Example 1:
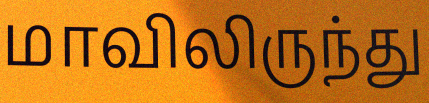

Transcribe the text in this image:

மாவிலிருந்து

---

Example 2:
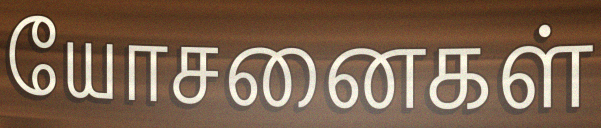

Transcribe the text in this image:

யோசனைகள்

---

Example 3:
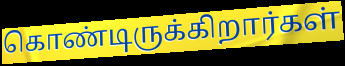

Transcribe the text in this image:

கொண்டிருக்கிறார்கள்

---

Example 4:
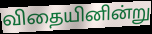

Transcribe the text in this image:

விதையினின்று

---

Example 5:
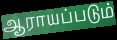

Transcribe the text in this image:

ஆராயப்படும்